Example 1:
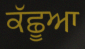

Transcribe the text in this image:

ਕੱਛੂਆ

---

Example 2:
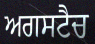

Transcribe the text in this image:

ਅਗਸਟੈਚ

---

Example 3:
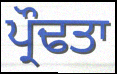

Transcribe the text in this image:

ਪ੍ਰੌਢਤਾ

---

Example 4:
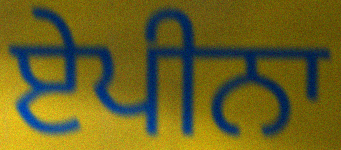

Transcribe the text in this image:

ਏਪੀਨਾ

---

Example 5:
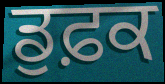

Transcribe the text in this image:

ਡੁਫ਼ਕ